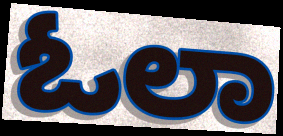
ಓಲಾ